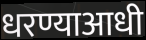
धरण्याआधी